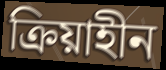
ক্রিয়াহীন